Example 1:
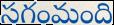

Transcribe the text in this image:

సగంమంది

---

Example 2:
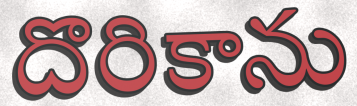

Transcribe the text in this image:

దొరికాను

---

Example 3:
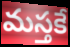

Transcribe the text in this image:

మస్తకే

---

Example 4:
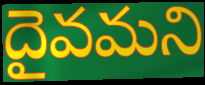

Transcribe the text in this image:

దైవమని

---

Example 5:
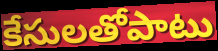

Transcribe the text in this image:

కేసులతోపాటు